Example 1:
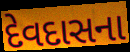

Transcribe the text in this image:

દેવદાસના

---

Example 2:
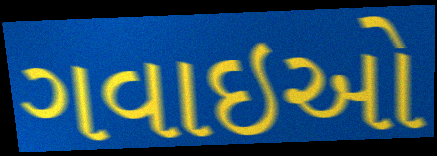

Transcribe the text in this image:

ગવાઇઓ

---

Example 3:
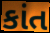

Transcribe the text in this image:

કાંત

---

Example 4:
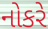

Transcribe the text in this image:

નોકરે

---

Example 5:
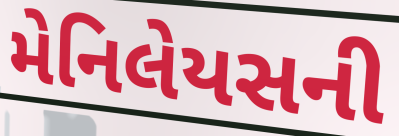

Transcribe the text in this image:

મેનિલેયસની